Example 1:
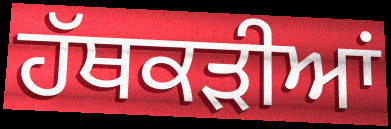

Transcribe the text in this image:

ਹੱਥਕੜੀਆਂ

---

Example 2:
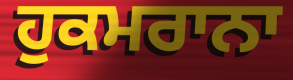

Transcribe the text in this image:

ਹੁਕਮਰਾਨਾ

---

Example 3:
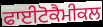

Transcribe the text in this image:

ਫਾਈਟੋਕੈਮੀਕਲ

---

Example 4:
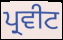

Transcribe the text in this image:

ਪ੍ਰਵੀਟ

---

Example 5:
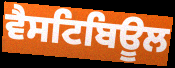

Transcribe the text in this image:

ਵੈਸਟਿਬਿਊਲ